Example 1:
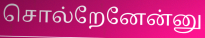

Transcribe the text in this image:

சொல்றேனேன்னு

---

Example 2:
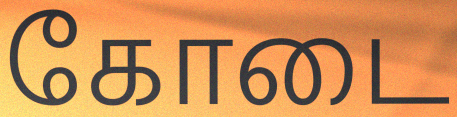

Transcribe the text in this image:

கோடை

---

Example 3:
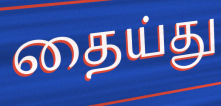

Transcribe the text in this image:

தைய்து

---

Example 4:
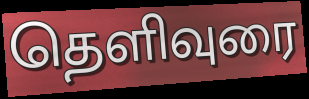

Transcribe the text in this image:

தெளிவுரை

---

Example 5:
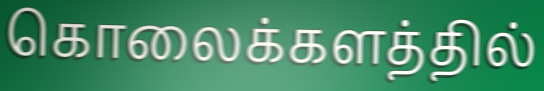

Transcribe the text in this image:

கொலைக்களத்தில்